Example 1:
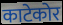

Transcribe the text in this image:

काटेकोर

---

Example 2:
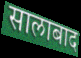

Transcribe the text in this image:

सालाबाद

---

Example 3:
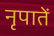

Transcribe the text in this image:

नृपातें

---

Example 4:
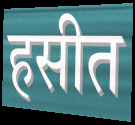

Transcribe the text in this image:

हसीत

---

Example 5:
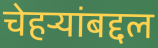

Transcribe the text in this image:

चेहऱ्यांबद्दल